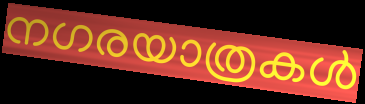
നഗരയാത്രകൾ